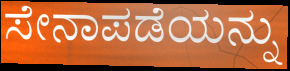
ಸೇನಾಪಡೆಯನ್ನು